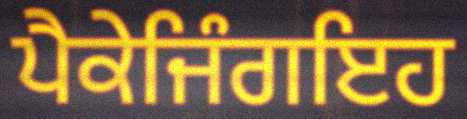
ਪੈਕੇਜਿੰਗਇਹ